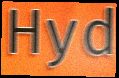
Hyd